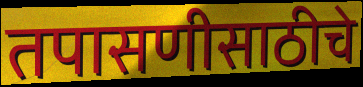
तपासणीसाठीचे